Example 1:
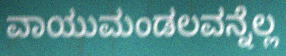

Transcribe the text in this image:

ವಾಯುಮಂಡಲವನ್ನೆಲ್ಲ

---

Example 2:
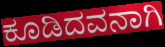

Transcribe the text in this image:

ಕೂಡಿದವನಾಗಿ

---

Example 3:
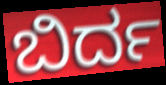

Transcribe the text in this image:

ಬಿರ್ದ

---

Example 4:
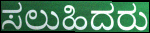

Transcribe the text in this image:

ಸಲುಹಿದರು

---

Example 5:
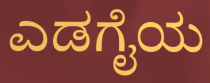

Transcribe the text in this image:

ಎಡಗೈಯ